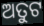
ଅତୁଟ